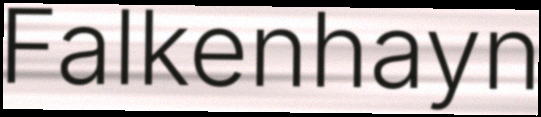
Falkenhayn